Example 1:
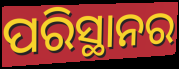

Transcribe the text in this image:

ପରିସ୍ଥାନର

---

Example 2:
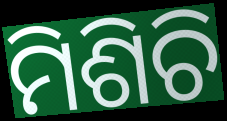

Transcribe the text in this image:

ମିଶିଚି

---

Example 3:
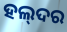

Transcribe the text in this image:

ହଲ୍‌ଦର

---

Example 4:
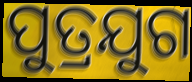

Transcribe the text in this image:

ପୁତ୍ରଯୁଗ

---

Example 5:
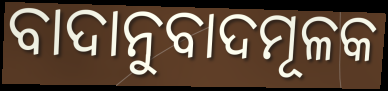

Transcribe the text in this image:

ବାଦାନୁବାଦମୂଳକ